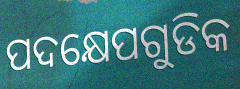
ପଦକ୍ଷେପଗୁଡିକ